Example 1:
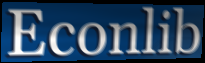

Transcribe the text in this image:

Econlib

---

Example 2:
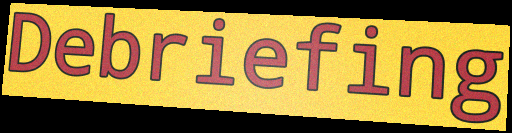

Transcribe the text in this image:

Debriefing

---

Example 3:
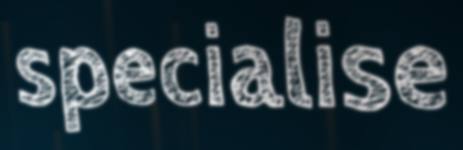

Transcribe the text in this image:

specialise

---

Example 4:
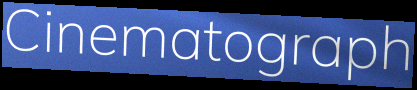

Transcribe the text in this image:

Cinematograph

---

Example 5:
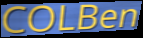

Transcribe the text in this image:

COLBen